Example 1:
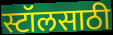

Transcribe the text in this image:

स्टॉलसाठी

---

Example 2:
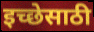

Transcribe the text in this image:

इच्छेसाठी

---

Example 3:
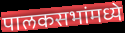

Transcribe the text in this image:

पालकसभांमध्ये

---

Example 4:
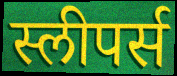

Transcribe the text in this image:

स्लीपर्स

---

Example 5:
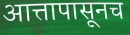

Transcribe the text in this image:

आत्तापासूनच